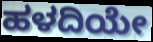
ಹಳದಿಯೇ